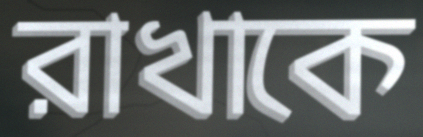
রাখাকে